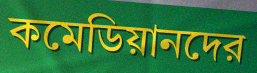
কমেডিয়ানদের